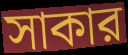
সাকার